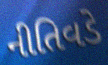
નીતિવડે